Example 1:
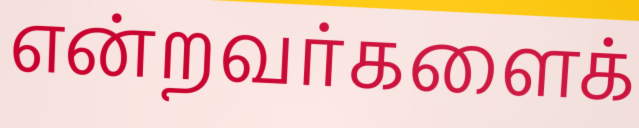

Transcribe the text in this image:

என்றவர்களைக்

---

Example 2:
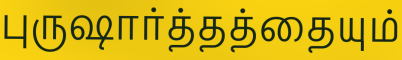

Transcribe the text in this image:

புருஷார்த்தத்தையும்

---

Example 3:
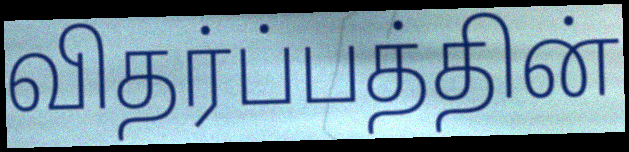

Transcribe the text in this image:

விதர்ப்பத்தின்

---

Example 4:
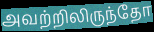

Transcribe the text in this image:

அவற்றிலிருந்தோ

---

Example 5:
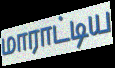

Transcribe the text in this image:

மாராட்டிய